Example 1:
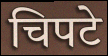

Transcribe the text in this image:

चिपटे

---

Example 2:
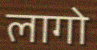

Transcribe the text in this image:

लागो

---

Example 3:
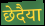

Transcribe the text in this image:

छेदैया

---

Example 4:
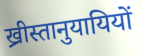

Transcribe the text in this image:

ख्रीस्तानुयायियों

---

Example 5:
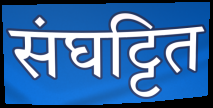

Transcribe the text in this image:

संघट्टित